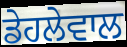
ਡੇਹਲੇਵਾਲ